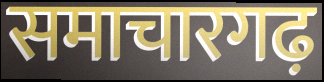
समाचारगढ़